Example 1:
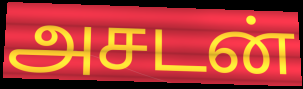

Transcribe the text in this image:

அசடன்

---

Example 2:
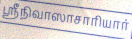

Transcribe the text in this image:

ஸ்ரீநிவாஸாசாரியார்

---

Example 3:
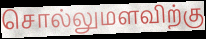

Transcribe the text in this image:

சொல்லுமளவிற்கு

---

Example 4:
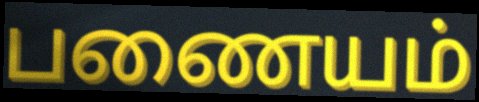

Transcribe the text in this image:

பணையம்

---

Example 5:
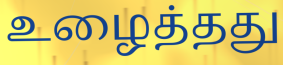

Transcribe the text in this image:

உழைத்தது